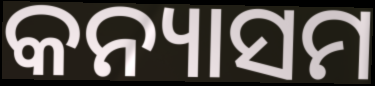
କନ୍ୟାସମ